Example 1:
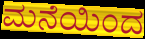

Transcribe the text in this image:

ಮನೆಯಿಂದ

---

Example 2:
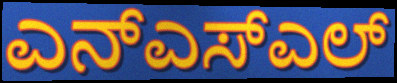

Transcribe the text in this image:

ಎನ್ಎಸ್ಎಲ್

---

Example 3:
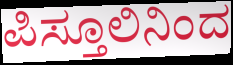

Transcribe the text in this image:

ಪಿಸ್ತೂಲಿನಿಂದ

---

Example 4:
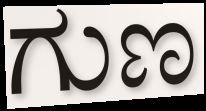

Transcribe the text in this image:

ಗುಣ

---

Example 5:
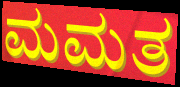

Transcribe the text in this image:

ಮಮತ